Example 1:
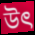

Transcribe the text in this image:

উৎ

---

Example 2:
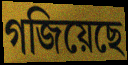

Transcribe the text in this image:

গজিয়েছে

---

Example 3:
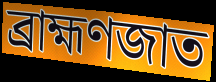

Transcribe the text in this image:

ব্রাহ্মণজাত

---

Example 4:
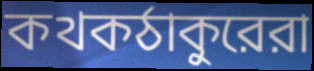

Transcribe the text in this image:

কথকঠাকুরেরা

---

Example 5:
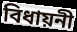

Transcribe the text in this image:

বিধায়নী